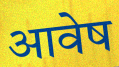
आवेष